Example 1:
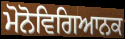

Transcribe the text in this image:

ਮੋਨੋਵਿਗਿਆਨਕ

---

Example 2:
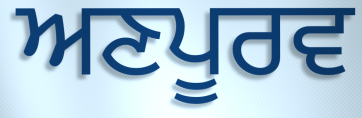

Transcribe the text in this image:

ਅਣਪੂਰਵ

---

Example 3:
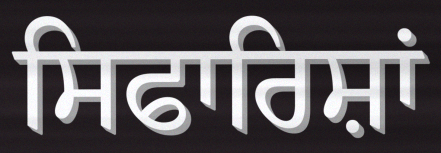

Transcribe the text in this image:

ਸਿਫਾਰਿਸ਼ਾਂ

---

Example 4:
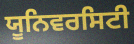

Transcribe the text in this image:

ਯੂਨਿਵਰਸਿਟੀ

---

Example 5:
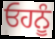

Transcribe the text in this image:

ਓਹਨੂੰ